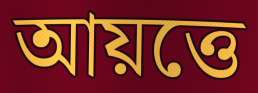
আয়ত্তে